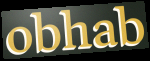
obhab